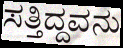
ಸತ್ತಿದ್ದವನು